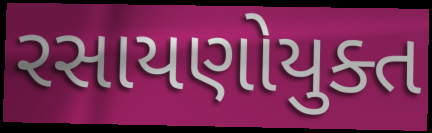
રસાયણોયુક્ત